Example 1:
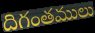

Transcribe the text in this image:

దిగంతములు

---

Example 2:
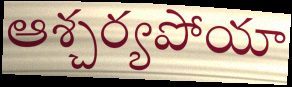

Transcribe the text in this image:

ఆశ్చర్యపోయా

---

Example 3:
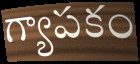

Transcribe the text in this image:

గ్యాపకం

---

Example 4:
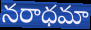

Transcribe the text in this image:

నరాధమా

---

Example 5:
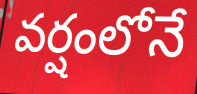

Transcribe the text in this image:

వర్షంలోనే